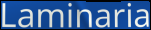
Laminaria